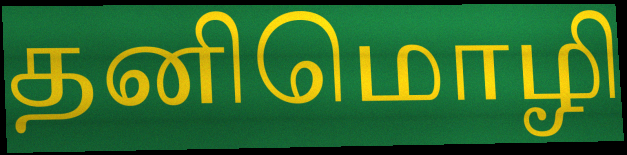
தனிமொழி